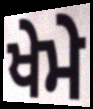
ਖੇਮੇ